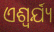
ଏଶ୍ଵର୍ଯ୍ୟ